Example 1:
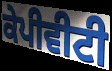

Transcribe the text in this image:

ਕੇਪੀਵੀਟੀ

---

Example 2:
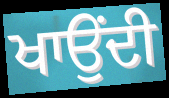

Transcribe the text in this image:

ਖਾਉਂਦੀ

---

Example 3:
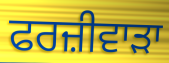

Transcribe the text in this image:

ਫਰਜ਼ੀਵਾਡ਼ਾ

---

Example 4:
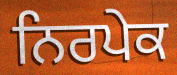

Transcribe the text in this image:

ਨਿਰਪੇਕ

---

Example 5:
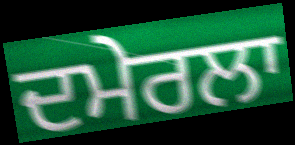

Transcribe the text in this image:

ਦਮੇਰਲਾ